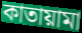
কাতায়ামা